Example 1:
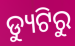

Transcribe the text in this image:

ଡ୍ୟୁଟିରୁ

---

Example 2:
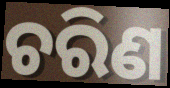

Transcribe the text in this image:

ଚରିଣ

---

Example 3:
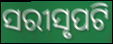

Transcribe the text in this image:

ସରୀସୃପଟି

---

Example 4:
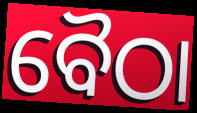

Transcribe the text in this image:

ବୈଠା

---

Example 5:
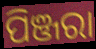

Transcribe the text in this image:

ପିଞ୍ଜରା